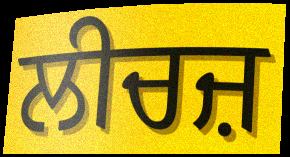
ਲੀਚਜ਼